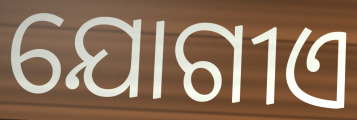
ଯୋଗୀଏ